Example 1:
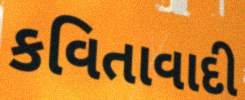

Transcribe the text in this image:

કવિતાવાદી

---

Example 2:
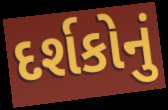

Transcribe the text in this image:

દર્શકોનું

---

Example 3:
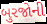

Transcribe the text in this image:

બુરજોની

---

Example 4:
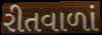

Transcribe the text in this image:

રીતવાળાં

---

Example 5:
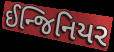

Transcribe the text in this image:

ઈન્જિનિયર